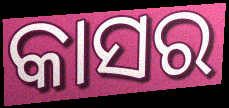
କାସର